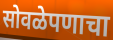
सोवळेपणाचा